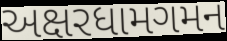
અક્ષરધામગમન